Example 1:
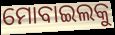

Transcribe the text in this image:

ମୋବାଇଲକୁ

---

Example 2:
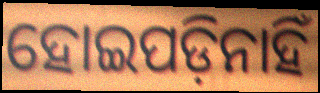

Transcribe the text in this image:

ହୋଇପଡ଼ିନାହିଁ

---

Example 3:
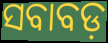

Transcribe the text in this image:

ସବାବଡ଼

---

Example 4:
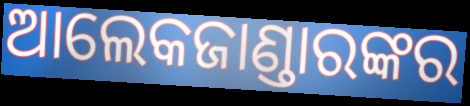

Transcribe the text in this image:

ଆଲେକଜାଣ୍ଡାରଙ୍କର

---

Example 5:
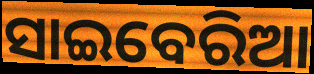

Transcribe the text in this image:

ସାଇବେରିଆ